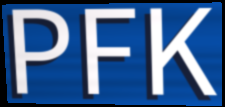
PFK